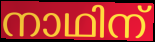
നാഥിന്